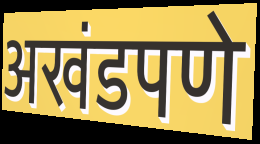
अखंडपणे